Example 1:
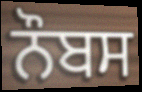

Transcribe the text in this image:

ਨੌਬਸ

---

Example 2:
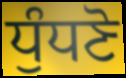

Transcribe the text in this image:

ਧੁੰਧਣੋ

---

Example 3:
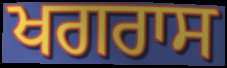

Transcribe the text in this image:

ਖਗਰਾਸ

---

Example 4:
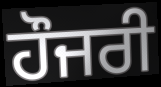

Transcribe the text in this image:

ਹੌਜਰੀ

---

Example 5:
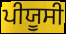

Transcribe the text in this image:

ਪੀਯੂਸੀ